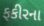
ફકીરના